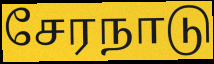
சேரநாடு